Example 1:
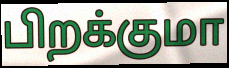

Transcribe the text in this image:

பிறக்குமா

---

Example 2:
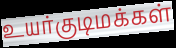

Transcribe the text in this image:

உயர்குடிமக்கள்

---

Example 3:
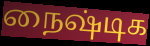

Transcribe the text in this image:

நைஷ்டிக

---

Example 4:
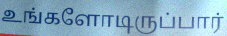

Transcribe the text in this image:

உங்களோடிருப்பார்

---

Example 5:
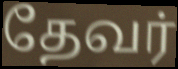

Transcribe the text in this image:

தேவர்